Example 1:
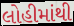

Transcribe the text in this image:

લોહીમાંથી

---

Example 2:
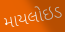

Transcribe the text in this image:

માયલોઇડ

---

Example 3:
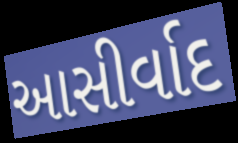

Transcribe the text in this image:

આસીર્વાદ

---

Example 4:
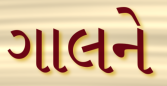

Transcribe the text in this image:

ગાલને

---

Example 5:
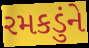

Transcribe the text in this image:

રમકડુંને